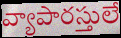
వ్యాపారస్తులే